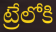
ట్రేలోకి